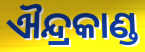
ଐନ୍ଦ୍ରକାଣ୍ଡ